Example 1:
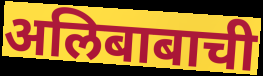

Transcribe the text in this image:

अलिबाबाची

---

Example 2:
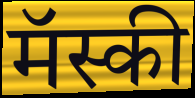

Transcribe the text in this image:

मॅस्की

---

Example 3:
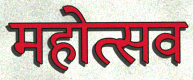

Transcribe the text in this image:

महोत्सव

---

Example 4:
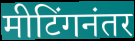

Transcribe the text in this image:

मीटिंगनंतर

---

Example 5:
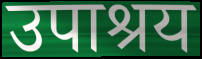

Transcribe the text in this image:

उपाश्रय